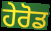
ਹੇਰੋਡ